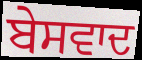
ਬੇਸਵਾਦ